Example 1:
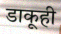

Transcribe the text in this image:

डाकूही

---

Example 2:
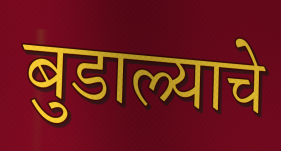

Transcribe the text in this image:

बुडाल्याचे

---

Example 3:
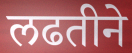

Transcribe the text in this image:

लढतीने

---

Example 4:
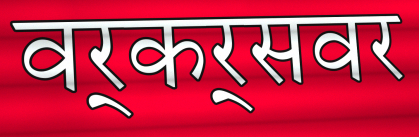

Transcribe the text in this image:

वर्कर्सवर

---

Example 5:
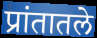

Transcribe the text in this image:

प्रांतातले